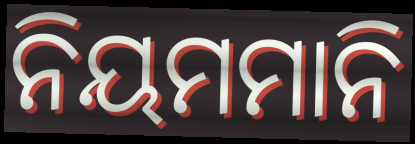
ନିୟମମାନି